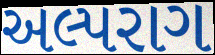
અલ્પરાગ